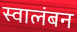
स्वालंबन